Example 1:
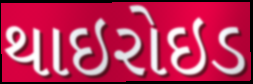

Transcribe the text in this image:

થાઇરોઇડ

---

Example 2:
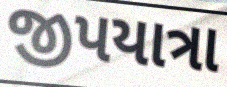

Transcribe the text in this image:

જીપયાત્રા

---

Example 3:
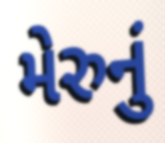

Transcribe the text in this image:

મેરુનું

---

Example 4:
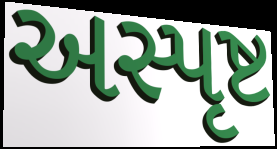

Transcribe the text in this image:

અસ્પૃષ્ટ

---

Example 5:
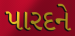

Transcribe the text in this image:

પારદને